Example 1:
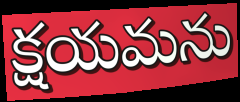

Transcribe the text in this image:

క్షయమను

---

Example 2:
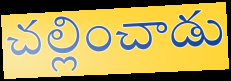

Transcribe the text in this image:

చల్లించాడు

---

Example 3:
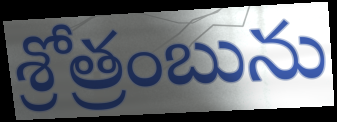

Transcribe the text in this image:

శ్రోత్రంబును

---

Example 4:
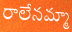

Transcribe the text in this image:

రాలేనమ్మా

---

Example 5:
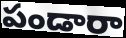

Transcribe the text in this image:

పండారా